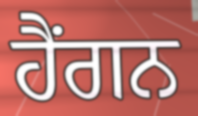
ਹੈਂਗਨ